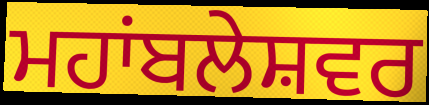
ਮਹਾਂਬਲੇਸ਼ਵਰ